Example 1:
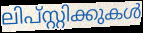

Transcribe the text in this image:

ലിപ്സ്റ്റിക്കുകൾ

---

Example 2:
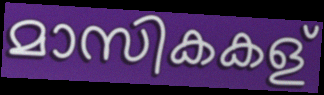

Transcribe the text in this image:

മാസികകള്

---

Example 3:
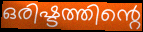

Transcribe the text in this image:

ഒരിഷ്ടത്തിന്റെ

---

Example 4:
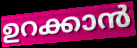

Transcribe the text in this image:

ഉറക്കാൻ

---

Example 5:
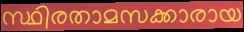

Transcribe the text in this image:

സ്ഥിരതാമസക്കാരായ